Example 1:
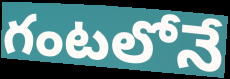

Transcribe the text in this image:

గంటలోనే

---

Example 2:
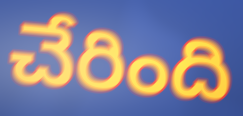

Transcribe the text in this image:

చేరింది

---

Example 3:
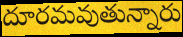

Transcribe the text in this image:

దూరమవుతున్నారు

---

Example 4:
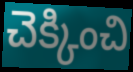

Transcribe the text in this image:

చెక్కించి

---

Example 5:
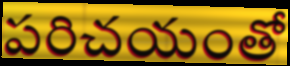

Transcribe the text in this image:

పరిచయంతో